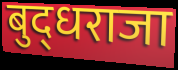
बुद्धराजा